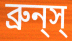
ব্রুন্‌স্